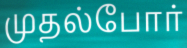
முதல்போர்